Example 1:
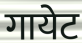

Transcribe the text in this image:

गायेट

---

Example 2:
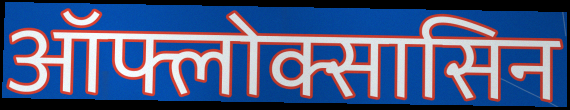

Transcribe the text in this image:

ऑफ्लोक्सासिन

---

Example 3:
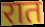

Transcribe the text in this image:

रात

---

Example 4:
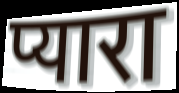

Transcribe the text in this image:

प्यारा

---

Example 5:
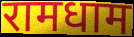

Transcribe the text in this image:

रामधाम